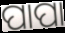
ପାପା